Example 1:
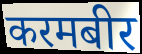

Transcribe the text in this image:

करमबीर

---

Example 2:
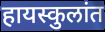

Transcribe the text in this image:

हायस्कुलांत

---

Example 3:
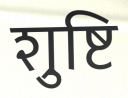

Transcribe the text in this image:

श्रुष्टि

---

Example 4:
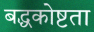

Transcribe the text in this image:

बद्धकोष्टता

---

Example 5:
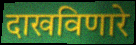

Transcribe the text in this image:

दाखविणारे